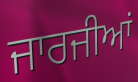
ਜਾਰਜੀਆਂ